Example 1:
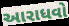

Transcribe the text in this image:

આરાધવો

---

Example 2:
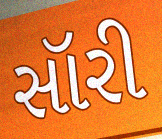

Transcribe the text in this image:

સૉરી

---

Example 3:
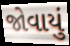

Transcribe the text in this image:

જોવાયું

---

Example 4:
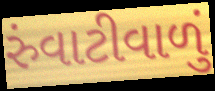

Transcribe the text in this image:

રુંવાટીવાળું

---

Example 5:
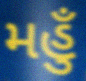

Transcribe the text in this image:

મહુઁ